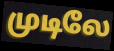
முடிலே